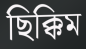
ছিক্কিম